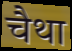
चैथा